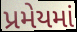
પ્રમેયમાં